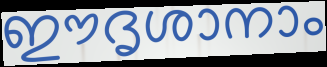
ഈദൃശാനാം